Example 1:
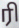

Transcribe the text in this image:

ரி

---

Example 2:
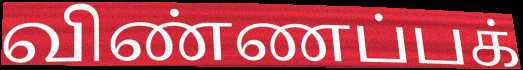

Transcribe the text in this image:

விண்ணப்பக்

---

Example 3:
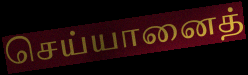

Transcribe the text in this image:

செய்யானைத்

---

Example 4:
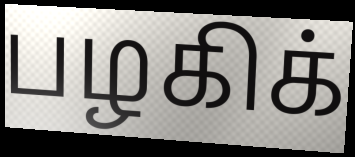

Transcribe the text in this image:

பழகிக்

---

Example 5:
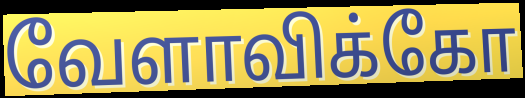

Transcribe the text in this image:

வேளாவிக்கோ